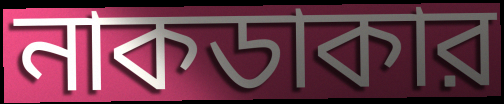
নাকডাকার